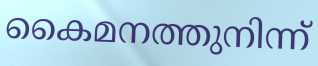
കൈമനത്തുനിന്ന്